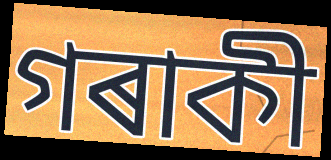
গৰাকী